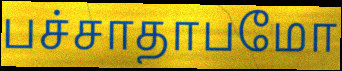
பச்சாதாபமோ